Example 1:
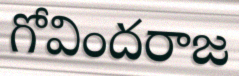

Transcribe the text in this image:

గోవిందరాజ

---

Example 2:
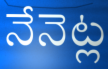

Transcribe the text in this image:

నేనెట్ల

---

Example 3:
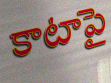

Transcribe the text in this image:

కాటాపై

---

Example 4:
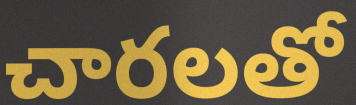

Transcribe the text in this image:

చారలతో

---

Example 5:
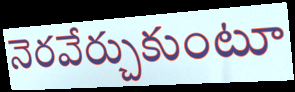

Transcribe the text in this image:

నెరవేర్చుకుంటూ